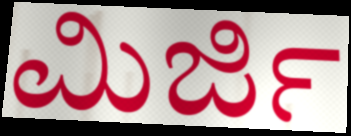
ಮಿರ್ಜಿ